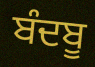
ਬੰਦਬੂ